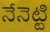
నేనెట్టి